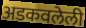
अडकवलेली